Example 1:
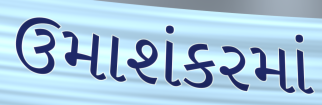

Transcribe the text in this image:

ઉમાશંકરમાં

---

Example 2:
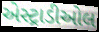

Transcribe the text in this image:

એસ્ટ્રાડીઓલ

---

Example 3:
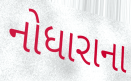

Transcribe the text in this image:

નોધારાના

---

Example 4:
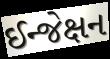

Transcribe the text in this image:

ઈન્જેક્ષન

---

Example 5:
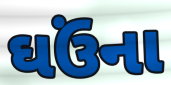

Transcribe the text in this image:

ઘઉંના